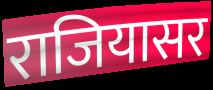
राजियासर